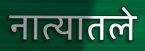
नात्यातले